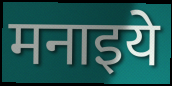
मनाइये